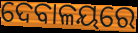
ଦେବାଳୟରେ